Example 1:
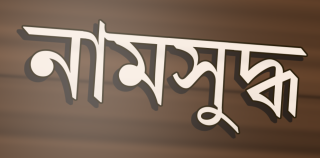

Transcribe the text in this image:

নামসুদ্ধ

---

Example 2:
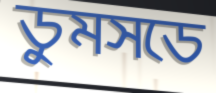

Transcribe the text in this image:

ডুমসডে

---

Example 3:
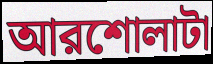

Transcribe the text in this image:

আরশোলাটা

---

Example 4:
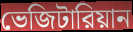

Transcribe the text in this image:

ভেজিটারিয়ান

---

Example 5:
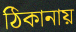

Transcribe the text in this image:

ঠিকানায়